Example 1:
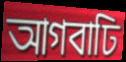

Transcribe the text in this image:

আগবাঢি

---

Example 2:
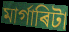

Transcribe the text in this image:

মাৰ্গাৰিটা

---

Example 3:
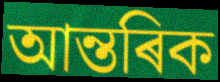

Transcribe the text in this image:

আন্তৰিক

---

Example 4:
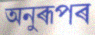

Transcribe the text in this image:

অনুৰূপৰ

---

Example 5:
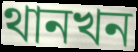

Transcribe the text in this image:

থানখন